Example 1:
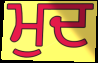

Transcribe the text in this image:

ਮੁਦ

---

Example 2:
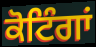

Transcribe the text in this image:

ਕੋਟਿੰਗਾਂ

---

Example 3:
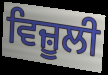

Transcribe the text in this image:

ਵਿਜ਼ੂਲੀ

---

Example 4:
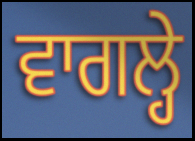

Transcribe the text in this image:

ਵਾਗਲ੍ਹੇ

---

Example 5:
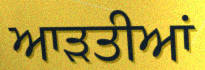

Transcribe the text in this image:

ਆਡ਼ਤੀਆਂ